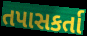
તપાસકર્તા